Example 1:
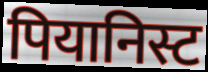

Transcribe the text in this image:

पियानिस्ट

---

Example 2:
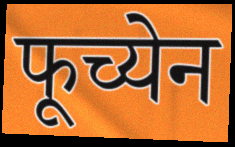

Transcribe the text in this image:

फूच्येन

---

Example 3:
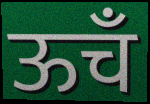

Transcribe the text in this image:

ऊचँ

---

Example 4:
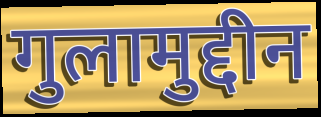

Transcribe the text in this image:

गुलामुद्दीन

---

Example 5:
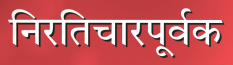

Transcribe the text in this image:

निरतिचारपूर्वक